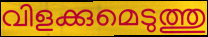
വിളക്കുമെടുത്തു